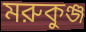
মরুকুঞ্জ